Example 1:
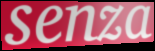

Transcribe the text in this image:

senza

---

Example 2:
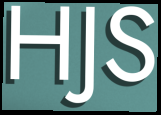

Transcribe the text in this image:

HJS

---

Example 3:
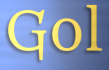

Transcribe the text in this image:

Gol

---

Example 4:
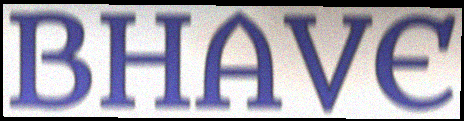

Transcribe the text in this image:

BHAVE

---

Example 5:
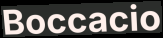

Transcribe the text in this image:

Boccacio